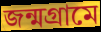
জন্মগ্রামে